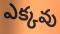
ఎక్కవు